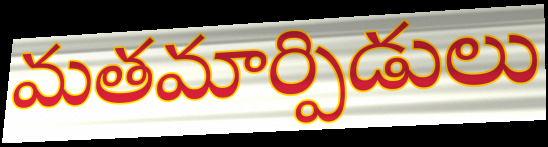
మతమార్పిడులు